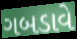
ગબડાવે